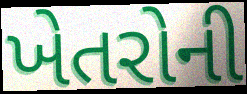
ખેતરોની